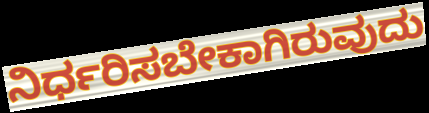
ನಿರ್ಧರಿಸಬೇಕಾಗಿರುವುದು